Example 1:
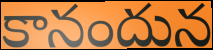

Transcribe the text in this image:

కానందున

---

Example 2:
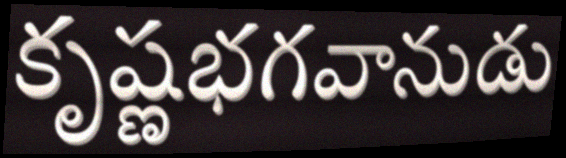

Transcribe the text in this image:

కృష్ణభగవానుడు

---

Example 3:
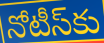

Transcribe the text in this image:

నోటీస్‌కు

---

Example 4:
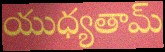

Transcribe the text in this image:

యుధ్యతామ్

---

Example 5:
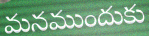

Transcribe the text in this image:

మనముందుకు